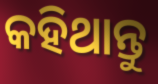
କହିଥାନ୍ତୁ